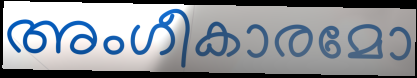
അംഗീകാരമോ